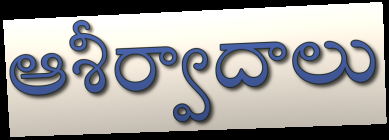
ఆశీర్వాదాలు